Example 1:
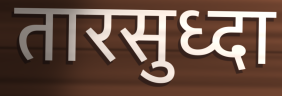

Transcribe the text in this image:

तारसुध्दा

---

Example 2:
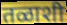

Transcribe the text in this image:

तळाशी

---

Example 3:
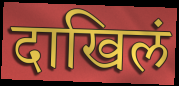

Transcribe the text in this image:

दाखिलं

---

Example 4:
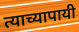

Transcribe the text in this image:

त्याच्यापायी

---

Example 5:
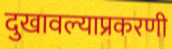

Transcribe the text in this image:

दुखावल्याप्रकरणी